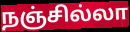
நஞ்சில்லா